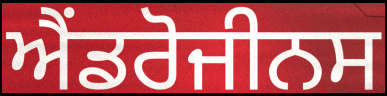
ਐਂਡਰੋਜੀਨਸ